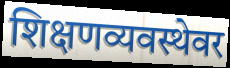
शिक्षणव्यवस्थेवर